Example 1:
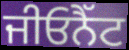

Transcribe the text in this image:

ਜੀਓਨੈੱਟ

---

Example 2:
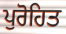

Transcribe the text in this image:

ਪੁਰੋਹਿਤ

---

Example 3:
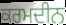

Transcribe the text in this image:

ਕਰਮਦੀਨ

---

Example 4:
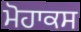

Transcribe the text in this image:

ਮੋਹਾਕਸ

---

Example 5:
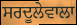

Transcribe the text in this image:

ਸਰਦੂਲੇਵਾਲਾ